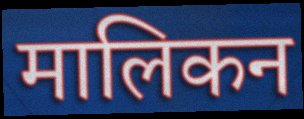
मालिकन